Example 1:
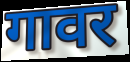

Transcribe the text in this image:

गावर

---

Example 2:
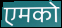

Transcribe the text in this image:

एमको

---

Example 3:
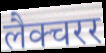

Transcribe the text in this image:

लैक्चरर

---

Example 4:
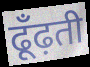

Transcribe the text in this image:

ढूँढ़ती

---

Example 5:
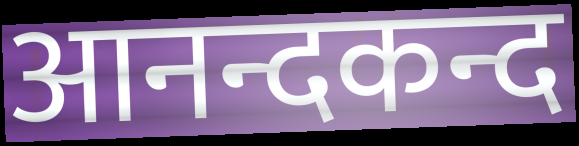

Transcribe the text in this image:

आनन्दकन्द